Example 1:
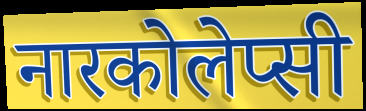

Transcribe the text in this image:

नारकोलेप्सी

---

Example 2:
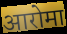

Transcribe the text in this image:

आरोमा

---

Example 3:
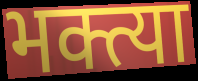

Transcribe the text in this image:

भक्त्या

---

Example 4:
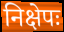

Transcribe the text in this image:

निक्षेपः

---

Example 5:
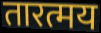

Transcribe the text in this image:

तारत्मय